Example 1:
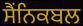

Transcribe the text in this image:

ਸੈੰਨਿਕਬਲ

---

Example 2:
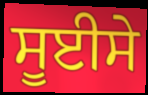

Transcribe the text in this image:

ਸੂਈਸੇ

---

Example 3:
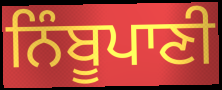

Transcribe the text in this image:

ਨਿੰਬੂਪਾਣੀ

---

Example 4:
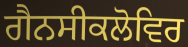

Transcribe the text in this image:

ਗੈਨਸੀਕਲੋਵਿਰ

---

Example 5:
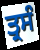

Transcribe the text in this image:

ਤ੍ਰਸੰ